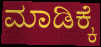
ಮಾಡಿಕ್ಕೆ